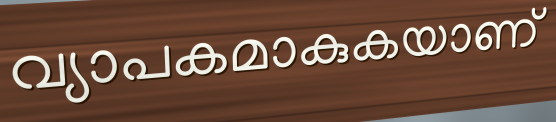
വ്യാപകമാകുകയാണ്